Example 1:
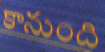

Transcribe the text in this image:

కానుంది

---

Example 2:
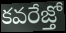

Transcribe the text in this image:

కవరేజ్తో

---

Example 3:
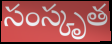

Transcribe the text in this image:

సంస్కృత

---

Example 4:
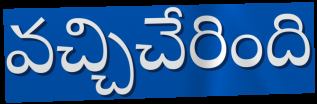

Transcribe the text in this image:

వచ్చిచేరింది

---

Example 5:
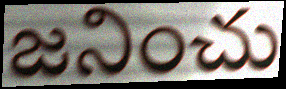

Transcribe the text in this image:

జనించు